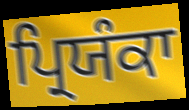
ਪ੍ਰਿਯੰਕਾ